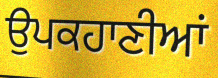
ਉਪਕਹਾਣੀਆਂ